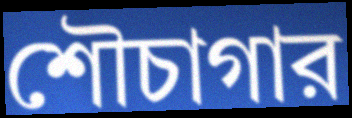
শৌচাগার